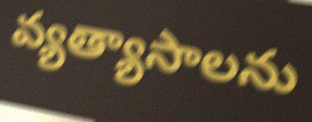
వ్యత్యాసాలను